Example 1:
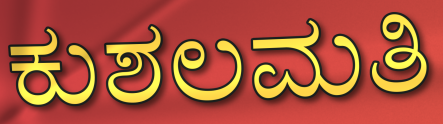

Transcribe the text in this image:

ಕುಶಲಮತಿ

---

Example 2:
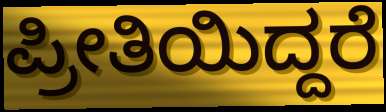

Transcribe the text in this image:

ಪ್ರೀತಿಯಿದ್ದರೆ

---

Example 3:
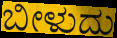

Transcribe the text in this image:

ಬೀಳುದು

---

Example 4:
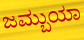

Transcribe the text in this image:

ಜಮ್ಬುಯಾ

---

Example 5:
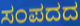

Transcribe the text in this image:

ಸಂಪದದ